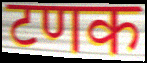
टणक